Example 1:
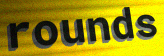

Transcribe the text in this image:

rounds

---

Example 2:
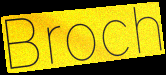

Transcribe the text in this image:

Broch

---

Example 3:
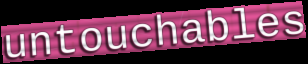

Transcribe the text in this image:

untouchables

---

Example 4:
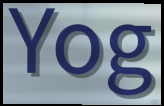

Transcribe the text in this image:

Yog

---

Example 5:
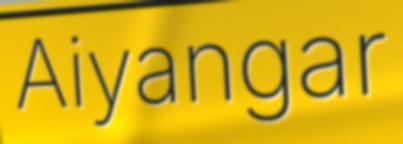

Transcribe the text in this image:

Aiyangar